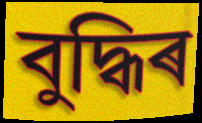
বুদ্ধিৰ